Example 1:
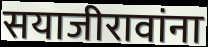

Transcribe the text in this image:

सयाजीरावांना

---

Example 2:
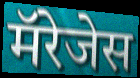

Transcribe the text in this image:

मॅरेजेस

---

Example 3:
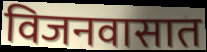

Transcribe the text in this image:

विजनवासात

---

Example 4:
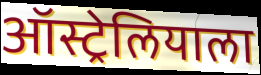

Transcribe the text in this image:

ऑस्ट्रेलियाला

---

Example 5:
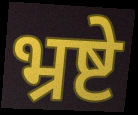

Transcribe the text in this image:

भ्रष्टे